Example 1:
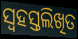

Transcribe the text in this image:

ସ୍ୱହସ୍ତଲିଖିତ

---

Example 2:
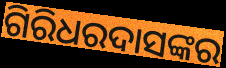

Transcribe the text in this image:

ଗିରିଧରଦାସଙ୍କର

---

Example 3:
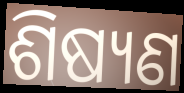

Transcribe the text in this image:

ଶିଷ୍ୟଣ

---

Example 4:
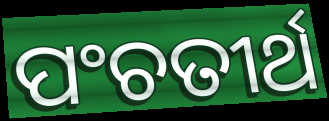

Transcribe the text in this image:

ପଂଚତୀର୍ଥ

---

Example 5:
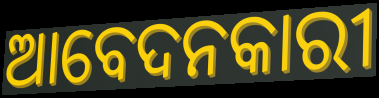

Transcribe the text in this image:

ଆବେଦନକାରୀ